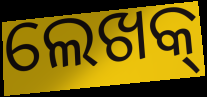
ଲେଖକ୍